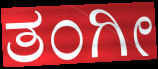
ತಂಗೀ